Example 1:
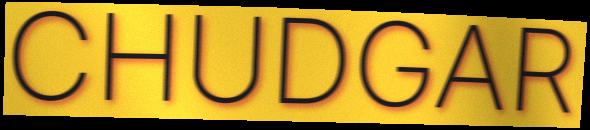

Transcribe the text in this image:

CHUDGAR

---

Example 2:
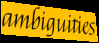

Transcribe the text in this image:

ambiguities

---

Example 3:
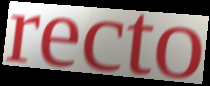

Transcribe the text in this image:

recto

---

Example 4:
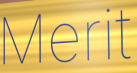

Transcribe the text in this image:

Merit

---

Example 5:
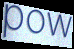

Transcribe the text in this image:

pow